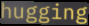
hugging